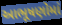
આભૂષણોમાં